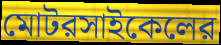
মোটরসাইকেলের